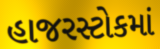
હાજરસ્ટોકમાં